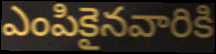
ఎంపికైనవారికి